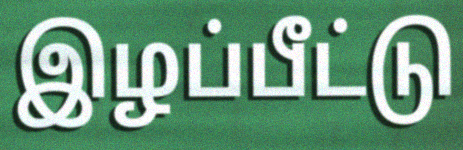
இழப்பீட்டு